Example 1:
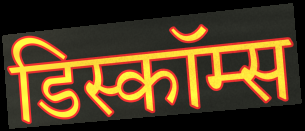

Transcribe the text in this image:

डिस्कॉम्स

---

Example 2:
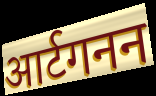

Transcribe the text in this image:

आर्टगनन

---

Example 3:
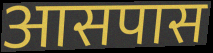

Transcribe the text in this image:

आसपास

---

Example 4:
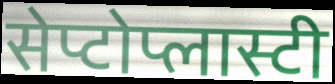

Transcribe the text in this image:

सेप्टोप्लास्टी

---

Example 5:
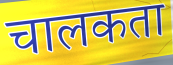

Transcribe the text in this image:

चालकता